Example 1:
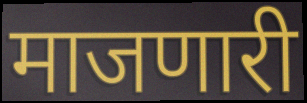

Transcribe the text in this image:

माजणारी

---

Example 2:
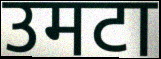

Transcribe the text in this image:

उमटा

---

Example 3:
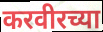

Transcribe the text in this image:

करवीरच्या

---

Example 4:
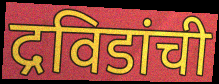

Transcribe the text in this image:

द्रविडांची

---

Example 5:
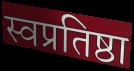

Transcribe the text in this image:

स्वप्रतिष्ठा